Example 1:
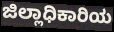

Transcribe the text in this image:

ಜಿಲ್ಲಾಧಿಕಾರಿಯ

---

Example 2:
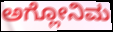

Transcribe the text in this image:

ಅಗ್ಲೋನಿಮ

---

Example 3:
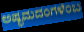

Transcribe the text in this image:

ಅಷ್ಟಮದಂಗಳೆಂಬ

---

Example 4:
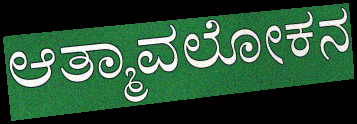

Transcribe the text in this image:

ಆತ್ಮಾವಲೋಕನ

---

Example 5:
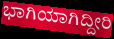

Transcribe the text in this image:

ಭಾಗಿಯಾಗಿದ್ದೀರಿ